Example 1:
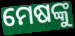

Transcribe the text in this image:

ମେଷଙ୍କୁ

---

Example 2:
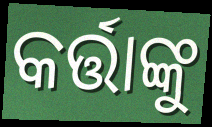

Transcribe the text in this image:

କର୍ତ୍ତାଙ୍କୁ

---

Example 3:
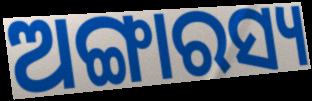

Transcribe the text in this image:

ଅଙ୍ଗାରସ୍ୟ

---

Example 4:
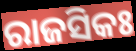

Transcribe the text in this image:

ରାଜସିକଃ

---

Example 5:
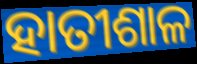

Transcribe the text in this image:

ହାତୀଶାଳ